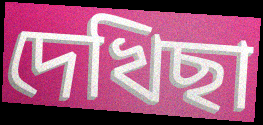
দেখিছা